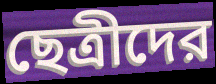
ছেত্রীদের